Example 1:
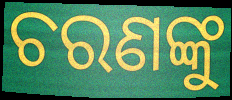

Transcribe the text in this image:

ଚରଣଙ୍କୁ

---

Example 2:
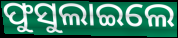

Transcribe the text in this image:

ଫୁସୁଲାଇଲେ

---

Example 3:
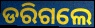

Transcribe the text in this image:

ଡରିଗଲେ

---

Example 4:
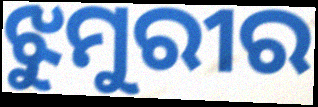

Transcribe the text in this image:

ଝୁମୁରୀର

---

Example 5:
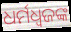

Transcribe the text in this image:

ଧର୍ମଧ୍ୱଜଙ୍କ